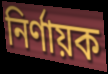
নির্ণায়ক